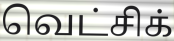
வெட்சிக்